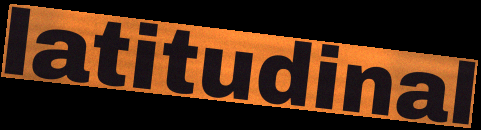
latitudinal